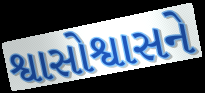
શ્વાસોશ્વાસને